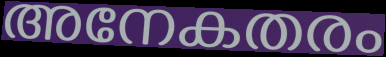
അനേകതരം